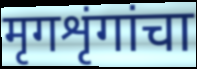
मृगशृंगांचा